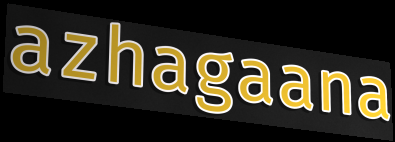
azhagaana